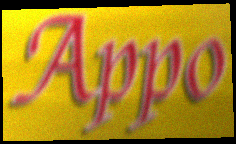
Appo